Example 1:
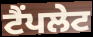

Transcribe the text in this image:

ਟੈਂਪਲੇਟ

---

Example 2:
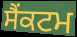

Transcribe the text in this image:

ਸੈੰਕਟਮ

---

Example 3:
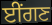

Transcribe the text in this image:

ਈਂਗਣ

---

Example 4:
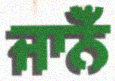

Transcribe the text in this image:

ਜਾਨੋਁ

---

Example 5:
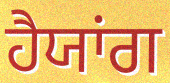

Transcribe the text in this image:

ਹੈਯਾਂਗ